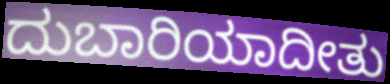
ದುಬಾರಿಯಾದೀತು